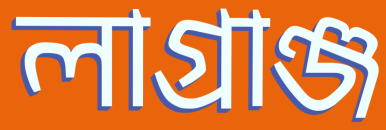
লাগ্ৰাঞ্জ